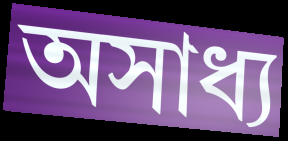
অসাধ্য